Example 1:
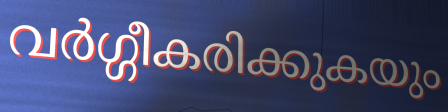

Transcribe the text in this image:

വർഗ്ഗീകരിക്കുകയും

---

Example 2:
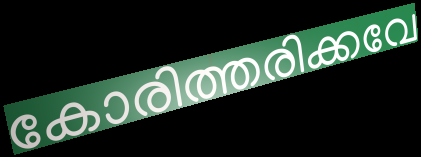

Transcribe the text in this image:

കോരിത്തരിക്കവേ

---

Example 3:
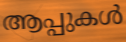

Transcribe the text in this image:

ആപ്പുകൾ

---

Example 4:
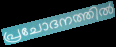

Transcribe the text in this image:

പ്രചോദനത്തിൽ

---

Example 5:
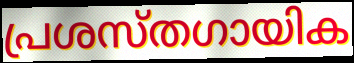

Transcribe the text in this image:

പ്രശസ്തഗായിക